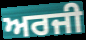
ਅਰਜੀ